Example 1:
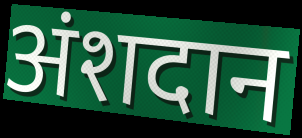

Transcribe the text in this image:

अंशदान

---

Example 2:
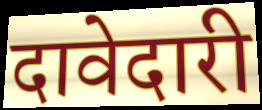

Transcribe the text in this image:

दावेदारी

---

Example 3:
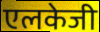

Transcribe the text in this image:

एलकेजी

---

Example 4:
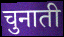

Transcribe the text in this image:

चुनाती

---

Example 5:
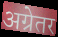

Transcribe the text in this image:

अग्रेतर